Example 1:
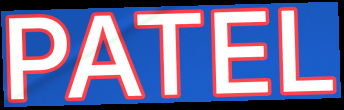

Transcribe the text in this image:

PATEL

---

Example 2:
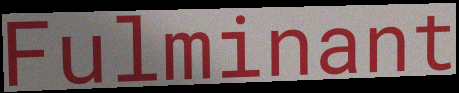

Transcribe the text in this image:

Fulminant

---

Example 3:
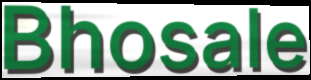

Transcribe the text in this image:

Bhosale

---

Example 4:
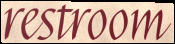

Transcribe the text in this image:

restroom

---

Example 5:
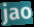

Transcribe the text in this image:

jao